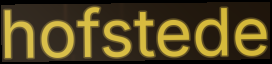
hofstede